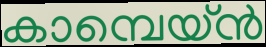
കാമ്പെയ്ൻ